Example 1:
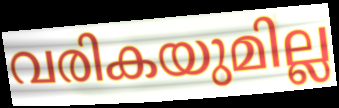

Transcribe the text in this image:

വരികയുമില്ല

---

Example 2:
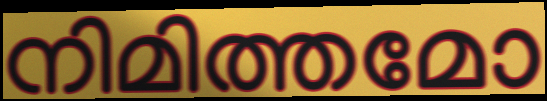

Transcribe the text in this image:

നിമിത്തമോ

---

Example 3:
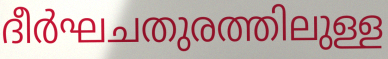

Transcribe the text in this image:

ദീർഘചതുരത്തിലുള്ള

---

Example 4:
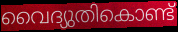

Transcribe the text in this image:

വൈദ്യുതികൊണ്ട്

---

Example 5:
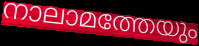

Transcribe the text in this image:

നാലാമത്തേയും